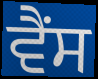
ਵੈਂਸ